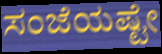
ಸಂಜೆಯಷ್ಟೇ